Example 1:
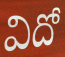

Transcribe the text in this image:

విదో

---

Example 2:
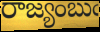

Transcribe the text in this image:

రాజ్యంబుఁ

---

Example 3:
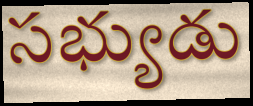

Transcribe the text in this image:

సభ్యుడు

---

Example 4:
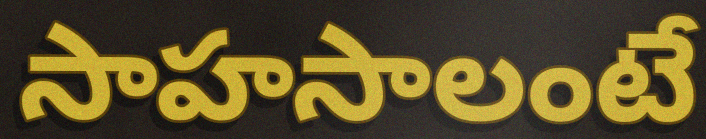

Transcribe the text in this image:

సాహసాలంటే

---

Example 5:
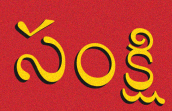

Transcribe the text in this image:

సంక్షి